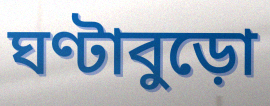
ঘণ্টাবুড়ো